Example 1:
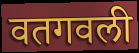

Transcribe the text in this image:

वतगवली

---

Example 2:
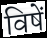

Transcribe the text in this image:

विषें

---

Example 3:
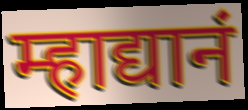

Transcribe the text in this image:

म्हाद्यानं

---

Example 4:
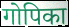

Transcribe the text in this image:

गोपिका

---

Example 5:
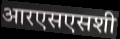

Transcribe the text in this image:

आरएसएसशी